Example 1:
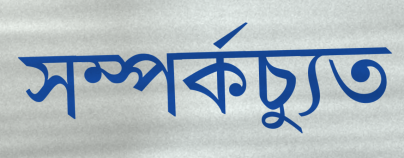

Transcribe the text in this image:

সম্পর্কচ্যুত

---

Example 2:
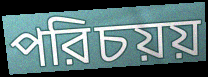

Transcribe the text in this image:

পরিচয়য়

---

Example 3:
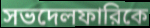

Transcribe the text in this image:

সভদেলফারিকে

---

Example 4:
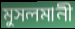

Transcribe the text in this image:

মুসলমানী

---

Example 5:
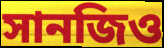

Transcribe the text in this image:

সানজিও